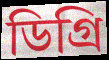
ডিগ্রি